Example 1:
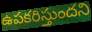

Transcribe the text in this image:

ఉపకరిస్తుందని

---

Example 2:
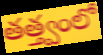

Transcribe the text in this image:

తత్త్వంలో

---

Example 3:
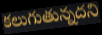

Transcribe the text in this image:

కలుగుతున్నదని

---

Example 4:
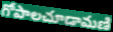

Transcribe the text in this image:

గోపాలచూడామణి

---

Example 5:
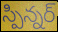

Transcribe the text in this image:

స్పిన్నర్